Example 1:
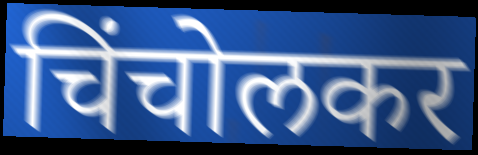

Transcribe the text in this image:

चिंचोलकर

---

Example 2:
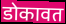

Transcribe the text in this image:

डोकावत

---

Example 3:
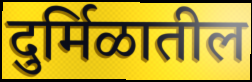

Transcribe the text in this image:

दुर्मिळातील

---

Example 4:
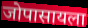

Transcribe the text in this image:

जोपासायला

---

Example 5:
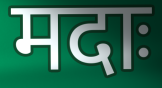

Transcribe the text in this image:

मदाः